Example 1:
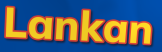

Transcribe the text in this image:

Lankan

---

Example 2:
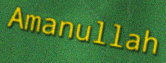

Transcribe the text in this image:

Amanullah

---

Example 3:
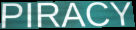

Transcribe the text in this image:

PIRACY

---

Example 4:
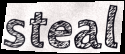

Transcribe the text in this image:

steal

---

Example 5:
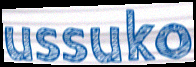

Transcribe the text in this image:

ussuko